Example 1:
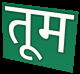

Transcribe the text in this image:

तूम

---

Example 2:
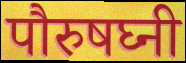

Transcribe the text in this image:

पौरुषघ्नी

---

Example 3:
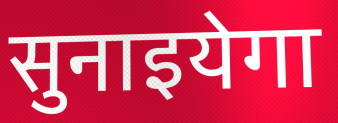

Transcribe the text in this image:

सुनाइयेगा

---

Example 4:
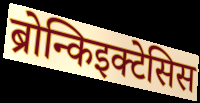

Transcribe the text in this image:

ब्रोन्किइक्टेसिस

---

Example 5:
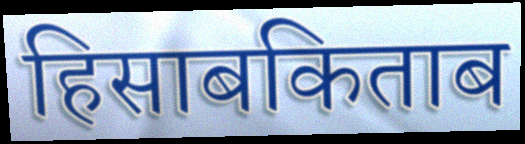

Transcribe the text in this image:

हिसाबकिताब